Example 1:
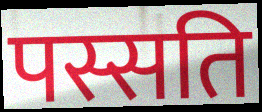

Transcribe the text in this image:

पस्सति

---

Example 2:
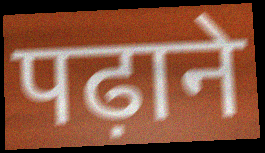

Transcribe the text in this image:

पढ़ाने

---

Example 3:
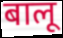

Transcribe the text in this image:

बालू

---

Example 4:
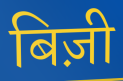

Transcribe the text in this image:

बिज़ी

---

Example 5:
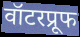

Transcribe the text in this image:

वॉटरप्रूफ